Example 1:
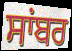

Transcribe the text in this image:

ਸਾਂਬਰ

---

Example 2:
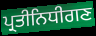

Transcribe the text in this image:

ਪ੍ਰਤੀਨਿਧੀਗਣ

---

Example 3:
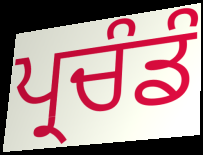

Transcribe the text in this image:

ਪ੍ਰਚੰਡੰ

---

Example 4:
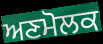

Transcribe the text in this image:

ਅਣਮੋਲਕ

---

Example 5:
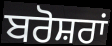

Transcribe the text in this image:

ਬਰੋਸ਼ਰਾਂ